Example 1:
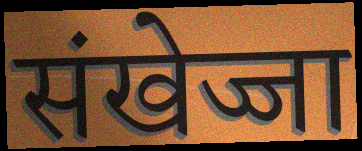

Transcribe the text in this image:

संखेज्जा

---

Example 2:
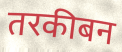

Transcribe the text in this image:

तरकीबन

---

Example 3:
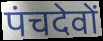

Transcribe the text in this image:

पंचदेवों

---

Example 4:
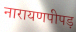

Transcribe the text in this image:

नारायणपीपड़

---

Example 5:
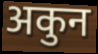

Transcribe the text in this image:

अकुन